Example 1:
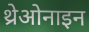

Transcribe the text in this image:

थ्रेओनाइन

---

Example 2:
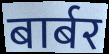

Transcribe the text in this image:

बार्बर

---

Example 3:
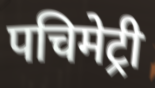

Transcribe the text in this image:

पचिमेट्री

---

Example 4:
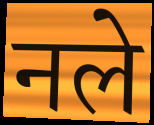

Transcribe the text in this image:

नले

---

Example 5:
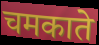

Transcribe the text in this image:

चमकाते